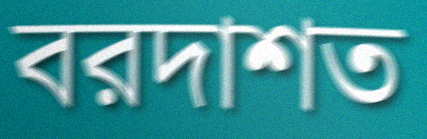
বরদাশত